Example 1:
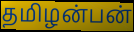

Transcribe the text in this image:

தமிழன்பன்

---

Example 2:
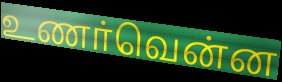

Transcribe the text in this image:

உணர்வென்ன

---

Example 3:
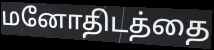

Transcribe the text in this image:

மனோதிடத்தை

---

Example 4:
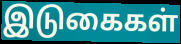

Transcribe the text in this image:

இடுகைகள்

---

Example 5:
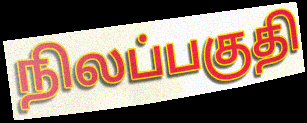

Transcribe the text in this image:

நிலப்பகுதி